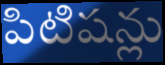
పిటిషన్లు